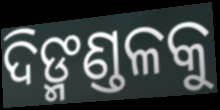
ଦିଙ୍ମଣ୍ଡଳକୁ